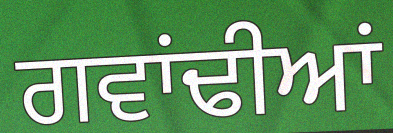
ਗਵਾਂਢੀਆਂ